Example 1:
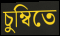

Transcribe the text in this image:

চুম্বিতে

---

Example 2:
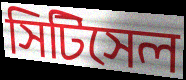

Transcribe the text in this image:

সিটিসেল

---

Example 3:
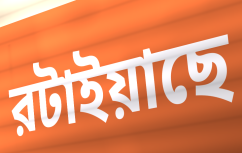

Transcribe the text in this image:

রটাইয়াছে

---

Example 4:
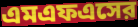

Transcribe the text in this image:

এমএফএসের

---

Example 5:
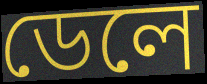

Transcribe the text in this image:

ডেলে